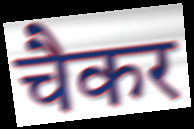
चैकर